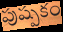
పుష్పకం